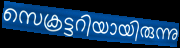
സെക്രട്ടറിയായിരുന്നു